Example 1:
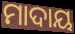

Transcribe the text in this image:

ମାଦାୟ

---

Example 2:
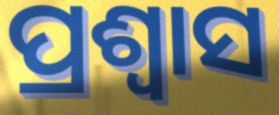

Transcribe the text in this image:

ପ୍ରଶ୍ୱାସ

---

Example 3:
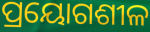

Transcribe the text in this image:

ପ୍ରୟୋଗଶୀଳ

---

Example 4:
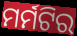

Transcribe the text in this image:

ମର୍ମଟିର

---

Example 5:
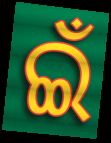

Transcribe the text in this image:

ଇଁ